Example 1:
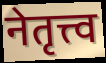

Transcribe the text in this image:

नेतृत्त्व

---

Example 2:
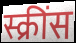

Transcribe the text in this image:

स्क्रींस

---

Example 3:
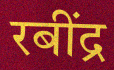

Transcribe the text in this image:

रबींद्र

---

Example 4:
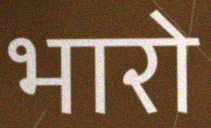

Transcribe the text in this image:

भारो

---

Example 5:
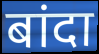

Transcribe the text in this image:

बांदा